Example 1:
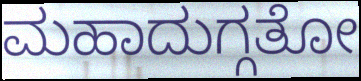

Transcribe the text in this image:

ಮಹಾದುಗ್ಗತೋ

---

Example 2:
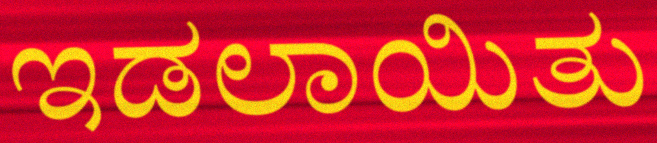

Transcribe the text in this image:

ಇಡಲಾಯಿತು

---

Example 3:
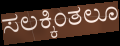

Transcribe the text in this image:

ಸಲಕ್ಕಿಂತಲೂ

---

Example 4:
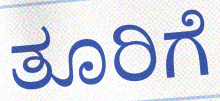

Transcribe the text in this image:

ತೂರಿಗೆ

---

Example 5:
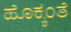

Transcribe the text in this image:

ಹೊಕ್ಕಂತೆ